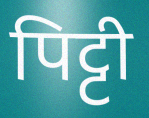
पिट्टी